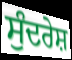
ਸੁੰਦਰੇਸ਼